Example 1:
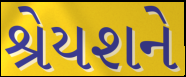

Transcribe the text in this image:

શ્રેયશને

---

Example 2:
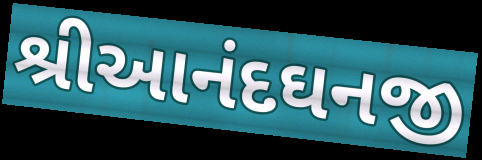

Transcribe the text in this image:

શ્રીઆનંદઘનજી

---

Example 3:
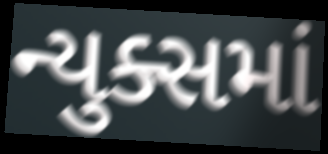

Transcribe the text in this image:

ન્યુક્સમાં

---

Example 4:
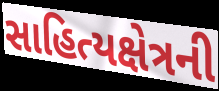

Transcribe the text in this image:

સાહિત્યક્ષેત્રની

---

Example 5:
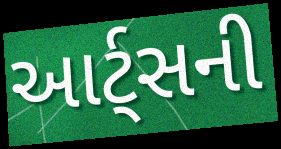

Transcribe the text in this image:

આર્ટ્સની